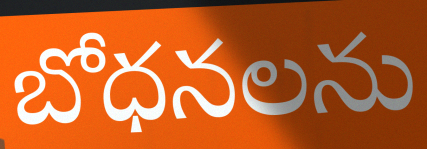
బోధనలను